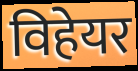
विहेयर